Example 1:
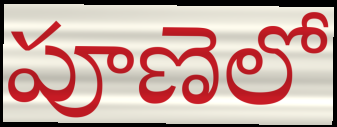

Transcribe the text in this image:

పూణెలో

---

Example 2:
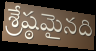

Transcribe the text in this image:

శ్రేష్ఠమైనది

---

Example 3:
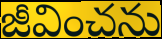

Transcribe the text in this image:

జీవించను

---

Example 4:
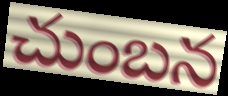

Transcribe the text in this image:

చుంబన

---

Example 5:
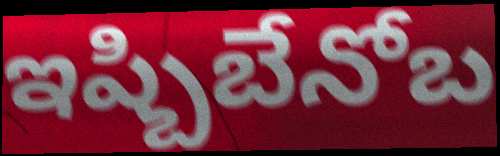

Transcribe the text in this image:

ఇష్బిబేనోబ